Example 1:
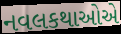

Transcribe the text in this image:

નવલકથાઓએ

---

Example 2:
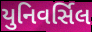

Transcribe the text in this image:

યુનિવર્સિલ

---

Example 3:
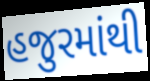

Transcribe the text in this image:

હજુરમાંથી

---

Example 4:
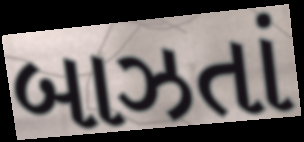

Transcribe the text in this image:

બાઝતાં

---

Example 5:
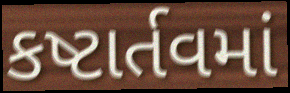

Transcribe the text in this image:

કષ્ટાર્તવમાં